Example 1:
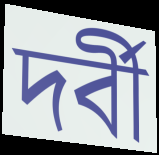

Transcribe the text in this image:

দর্বী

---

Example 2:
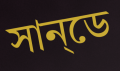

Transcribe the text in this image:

সান্‌ডে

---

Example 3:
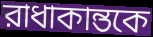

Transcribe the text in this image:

রাধাকান্তকে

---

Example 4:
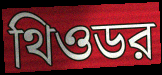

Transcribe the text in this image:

থিওডর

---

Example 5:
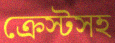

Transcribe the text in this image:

ক্রেস্টসহ